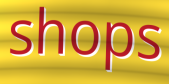
shops